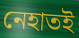
নেহাতই